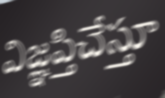
విజ్ఞప్తిచేస్తూ